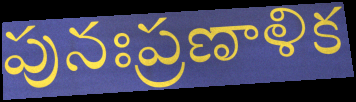
పునఃప్రణాళిక